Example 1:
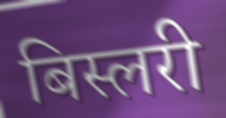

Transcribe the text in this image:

बिस्लरी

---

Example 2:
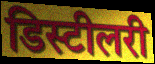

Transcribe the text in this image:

डिस्टीलरी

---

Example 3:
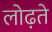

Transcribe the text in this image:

लोढ़ते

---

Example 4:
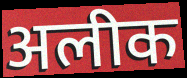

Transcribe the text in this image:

अलीक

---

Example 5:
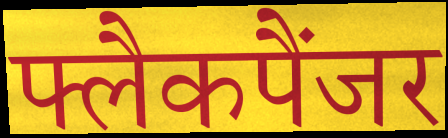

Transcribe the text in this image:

फ्लैकपैंजर